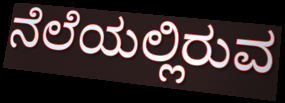
ನೆಲೆಯಲ್ಲಿರುವ